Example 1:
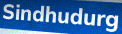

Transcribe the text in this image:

Sindhudurg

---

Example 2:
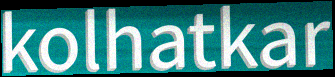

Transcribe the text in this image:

kolhatkar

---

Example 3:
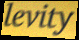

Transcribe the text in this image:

levity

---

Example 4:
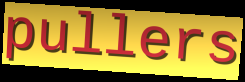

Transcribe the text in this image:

pullers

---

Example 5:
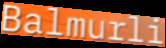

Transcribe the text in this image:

Balmurli